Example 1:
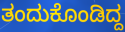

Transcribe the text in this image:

ತಂದುಕೊಂಡಿದ್ದ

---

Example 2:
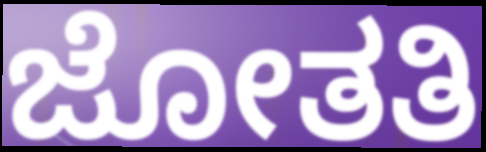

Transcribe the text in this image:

ಜೋತತಿ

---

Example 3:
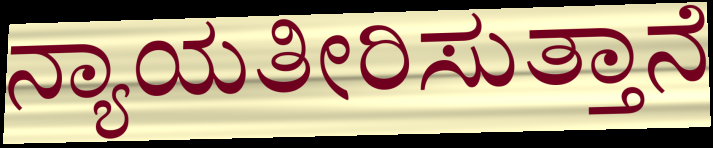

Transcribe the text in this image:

ನ್ಯಾಯತೀರಿಸುತ್ತಾನೆ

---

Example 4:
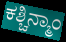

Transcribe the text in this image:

ಕಶ್ಚಿನ್ಮಾಂ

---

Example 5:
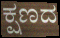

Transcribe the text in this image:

ಕ್ಷಣದ